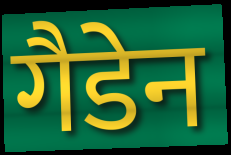
गैडेन